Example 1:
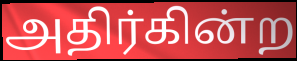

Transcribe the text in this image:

அதிர்கின்ற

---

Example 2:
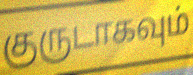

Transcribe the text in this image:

குருடாகவும்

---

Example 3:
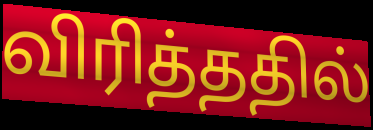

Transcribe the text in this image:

விரித்ததில்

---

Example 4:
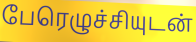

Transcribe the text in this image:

பேரெழுச்சியுடன்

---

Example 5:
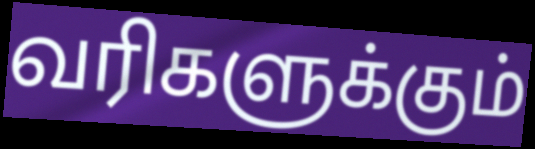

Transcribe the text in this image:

வரிகளுக்கும்